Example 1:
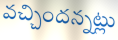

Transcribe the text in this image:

వచ్చిందన్నట్లు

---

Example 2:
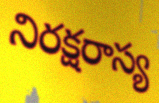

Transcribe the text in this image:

నిరక్షరాస్య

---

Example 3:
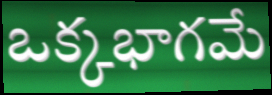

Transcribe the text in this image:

ఒక్కభాగమే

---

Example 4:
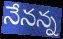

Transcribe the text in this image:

నేనన్న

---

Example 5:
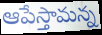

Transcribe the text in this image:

ఆపేస్తామన్న